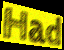
Had